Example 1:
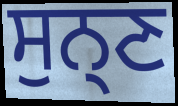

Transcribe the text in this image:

ਸੁਨ੍ਣ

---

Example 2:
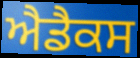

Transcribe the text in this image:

ਐਡੈਕਸ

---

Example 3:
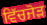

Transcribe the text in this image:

ਵਿੱਚਜੋੜ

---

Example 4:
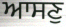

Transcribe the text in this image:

ਆਸਣੁ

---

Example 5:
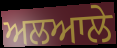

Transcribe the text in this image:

ਅਲਆਲੇ